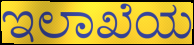
ಇಲಾಖೆಯ